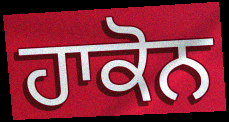
ਹਾਕੋਨ